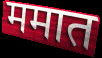
ममात